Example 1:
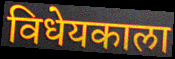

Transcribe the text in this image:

विधेयकाला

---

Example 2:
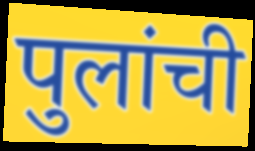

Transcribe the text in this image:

पुलांची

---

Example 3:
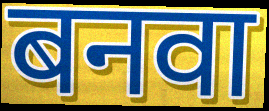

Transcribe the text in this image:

बनवा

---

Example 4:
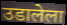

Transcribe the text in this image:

उडालेला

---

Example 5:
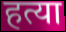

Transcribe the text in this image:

हत्या